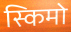
स्किमो